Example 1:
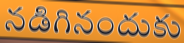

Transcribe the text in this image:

నడిగినందుకు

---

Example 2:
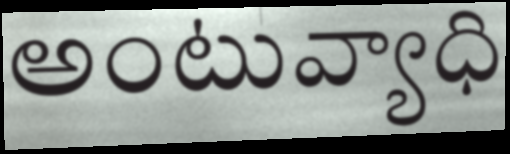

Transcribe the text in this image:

అంటువ్యాధి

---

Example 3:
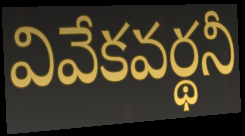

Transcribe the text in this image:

వివేకవర్థనీ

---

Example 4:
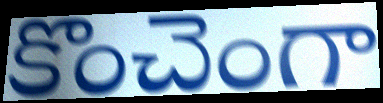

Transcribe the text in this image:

కొంచెంగా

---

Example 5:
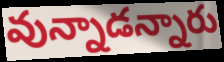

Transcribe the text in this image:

వున్నాడన్నారు